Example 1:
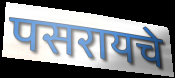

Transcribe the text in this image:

पसरायचे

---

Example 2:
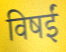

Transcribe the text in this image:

विषईं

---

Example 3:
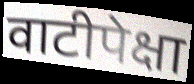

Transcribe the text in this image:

वाटीपेक्षा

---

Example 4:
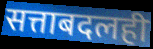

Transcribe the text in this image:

सत्ताबदलही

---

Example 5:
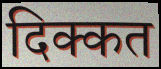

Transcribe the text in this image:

दिक्कत